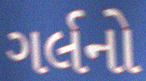
ગર્લનો